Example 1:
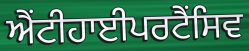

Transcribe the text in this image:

ਐਂਟੀਹਾਈਪਰਟੈਂਸਿਵ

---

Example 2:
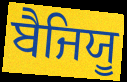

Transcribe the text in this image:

ਬੈਜਿਯੂ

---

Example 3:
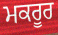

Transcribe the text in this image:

ਮਕਰੂਰ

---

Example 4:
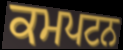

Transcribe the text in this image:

ਕਮਪਟਨ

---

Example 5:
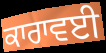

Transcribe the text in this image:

ਕਾਰਾਵਈ